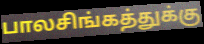
பாலசிங்கத்துக்கு